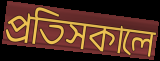
প্রতিসকালে